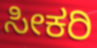
ಸೀಕರಿ